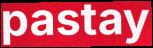
pastay